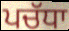
ਪਚੱਧਾ